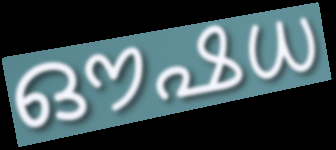
ഔഷധ